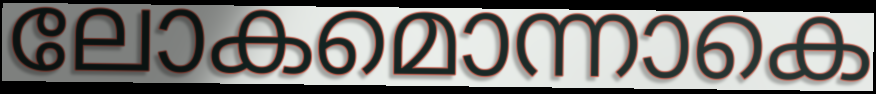
ലോകമൊന്നാകെ